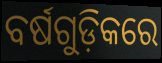
ବର୍ଷଗୁଡ଼ିକରେ